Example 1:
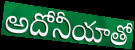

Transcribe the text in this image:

అదోనీయాతో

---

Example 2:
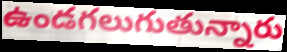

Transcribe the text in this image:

ఉండగలుగుతున్నారు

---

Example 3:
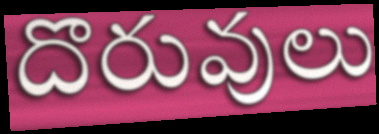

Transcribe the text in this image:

దొరువులు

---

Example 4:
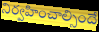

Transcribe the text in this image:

నిర్వహించాల్సిందే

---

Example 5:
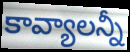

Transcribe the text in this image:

కావ్యాలన్నీ